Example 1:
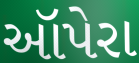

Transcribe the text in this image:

ઑપેરા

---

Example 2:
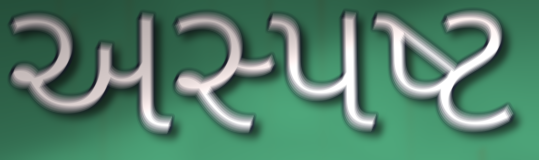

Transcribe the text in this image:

અસ્પષ્ટ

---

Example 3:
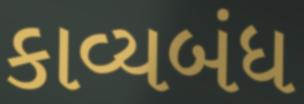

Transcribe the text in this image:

કાવ્યબંધ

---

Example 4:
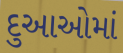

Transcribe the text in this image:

દુઆઓમાં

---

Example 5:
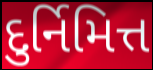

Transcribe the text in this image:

દુર્નિમિત્ત